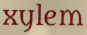
xylem